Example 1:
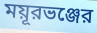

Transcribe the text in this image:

ময়ূরভঞ্জের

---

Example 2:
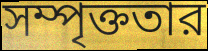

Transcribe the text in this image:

সম্পৃক্ততার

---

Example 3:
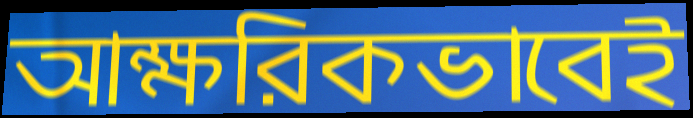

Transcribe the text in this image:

আক্ষরিকভাবেই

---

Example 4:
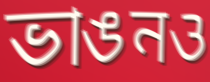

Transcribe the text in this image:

ভাঙনও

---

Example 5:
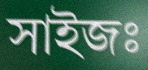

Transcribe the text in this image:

সাইজঃ